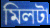
মিলটা